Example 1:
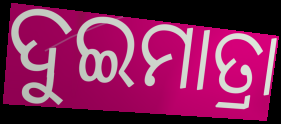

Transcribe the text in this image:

ଦୁଇମାତ୍ରା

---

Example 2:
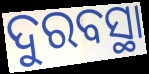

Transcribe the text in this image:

ଦୁରବସ୍ଥା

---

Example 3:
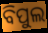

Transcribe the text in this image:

ବିପୁଲ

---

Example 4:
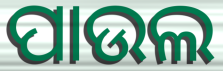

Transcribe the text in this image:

ପାଉଲ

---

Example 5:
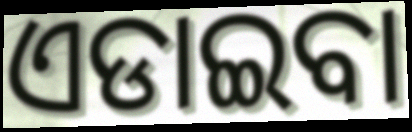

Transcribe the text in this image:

ଏଡାଇବା